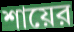
শায়ের